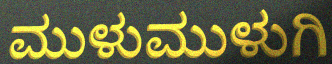
ಮುಳುಮುಳುಗಿ